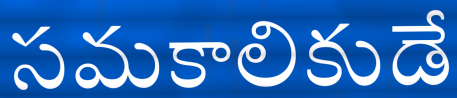
సమకాలికుడే